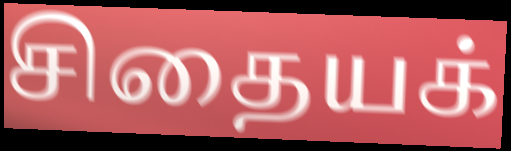
சிதையக்